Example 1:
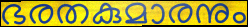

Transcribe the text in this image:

ഭരതകുമാരനും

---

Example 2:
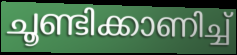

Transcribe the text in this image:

ചൂണ്ടിക്കാണിച്ച്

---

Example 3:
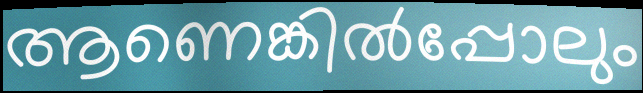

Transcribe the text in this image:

ആണെങ്കിൽപ്പോലും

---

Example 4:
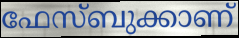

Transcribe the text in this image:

ഫേസ്ബുക്കാണ്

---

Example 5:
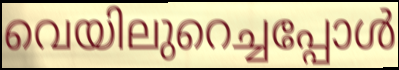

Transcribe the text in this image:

വെയിലുറെച്ചപ്പോൾ